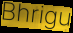
Bhrigu